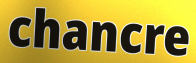
chancre